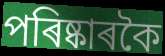
পৰিষ্কাৰকৈ